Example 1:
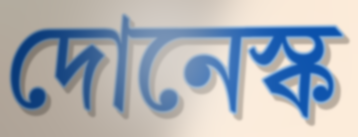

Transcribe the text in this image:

দোনেস্ক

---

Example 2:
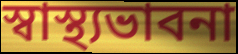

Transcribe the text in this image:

স্বাস্থ্যভাবনা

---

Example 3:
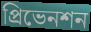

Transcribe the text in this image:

প্রিভেনশন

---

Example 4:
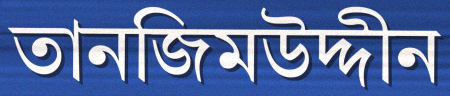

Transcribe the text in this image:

তানজিমউদ্দীন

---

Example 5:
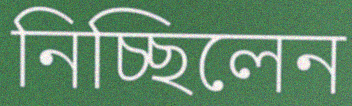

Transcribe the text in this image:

নিচ্ছিলেন